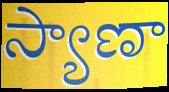
స్యాణా